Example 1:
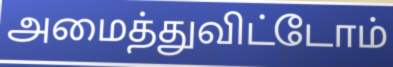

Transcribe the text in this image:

அமைத்துவிட்டோம்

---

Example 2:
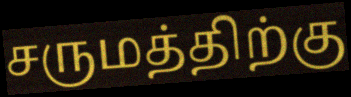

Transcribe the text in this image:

சருமத்திற்கு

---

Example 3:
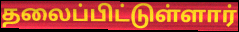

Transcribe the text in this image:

தலைப்பிட்டுள்ளார்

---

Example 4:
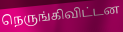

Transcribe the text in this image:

நெருங்கிவிட்டன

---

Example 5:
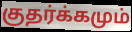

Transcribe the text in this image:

குதர்க்கமும்